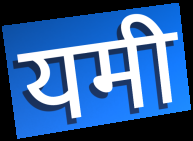
यमी